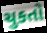
ચુકતો